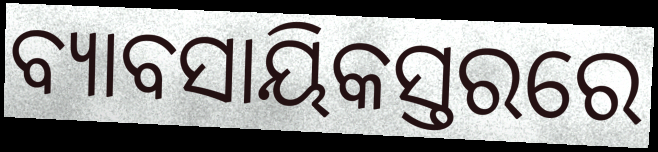
ବ୍ୟାବସାୟିକସ୍ତରରେ